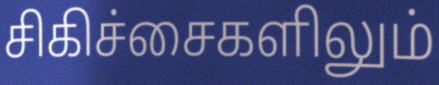
சிகிச்சைகளிலும்